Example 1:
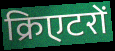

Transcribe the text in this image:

क्रिएटरों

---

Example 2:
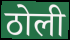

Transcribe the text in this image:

ठोली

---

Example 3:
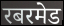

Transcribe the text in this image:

रबरमेड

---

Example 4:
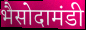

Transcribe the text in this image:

भैसोदामंडी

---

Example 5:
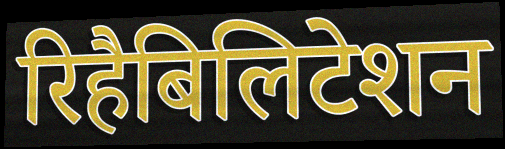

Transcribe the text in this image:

रिहैबिलिटेशन